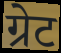
ग्रेट